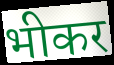
भीकर